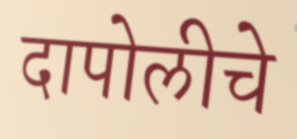
दापोलीचे